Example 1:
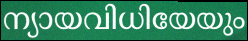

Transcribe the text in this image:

ന്യായവിധിയേയും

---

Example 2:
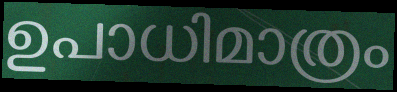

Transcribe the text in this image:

ഉപാധിമാത്രം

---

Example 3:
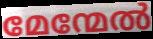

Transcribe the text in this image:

മേന്മേൽ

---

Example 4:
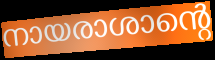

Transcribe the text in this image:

നായരാശാന്റെ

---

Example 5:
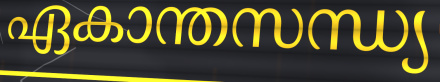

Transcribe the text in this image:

ഏകാന്തസന്ധ്യ